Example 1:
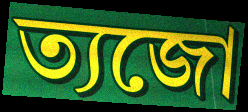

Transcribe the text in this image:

ত্যজো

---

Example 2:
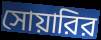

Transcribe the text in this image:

সোয়ারির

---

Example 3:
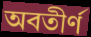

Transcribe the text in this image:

অবতীর্ণ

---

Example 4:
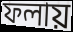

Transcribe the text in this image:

ফলায়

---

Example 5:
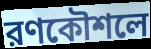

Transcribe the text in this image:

রণকৌশলে